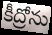
కీద్రోను